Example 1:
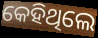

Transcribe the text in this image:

କେହିଥିଲେ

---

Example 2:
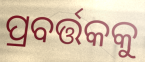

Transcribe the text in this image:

ପ୍ରବର୍ତ୍ତକକୁ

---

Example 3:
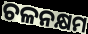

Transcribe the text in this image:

ଚଳନକ୍ଷମ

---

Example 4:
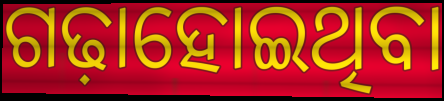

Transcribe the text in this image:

ଗଢ଼ାହୋଇଥିବା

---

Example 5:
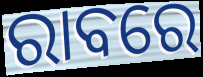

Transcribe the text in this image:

ରାବରେ